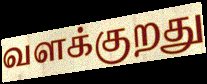
வளக்குறது